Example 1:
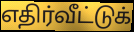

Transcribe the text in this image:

எதிர்வீட்டுக்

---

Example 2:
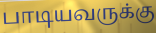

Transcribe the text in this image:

பாடியவருக்கு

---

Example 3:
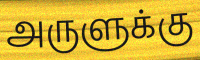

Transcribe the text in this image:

அருளுக்கு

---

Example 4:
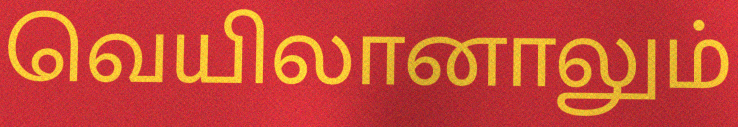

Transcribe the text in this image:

வெயிலானாலும்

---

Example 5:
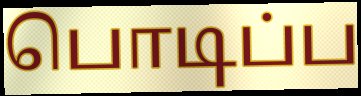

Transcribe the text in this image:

பொடிப்ப